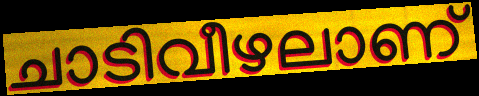
ചാടിവീഴലാണ്